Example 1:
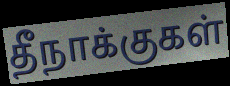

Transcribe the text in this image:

தீநாக்குகள்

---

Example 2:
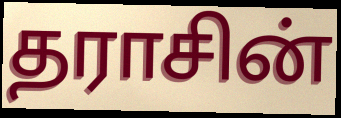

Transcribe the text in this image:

தராசின்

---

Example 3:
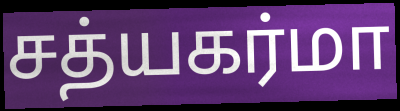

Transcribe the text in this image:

சத்யகர்மா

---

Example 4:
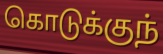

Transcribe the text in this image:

கொடுக்குந்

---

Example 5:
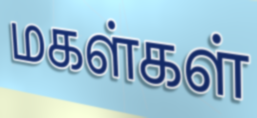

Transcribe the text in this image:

மகள்கள்